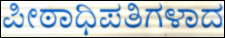
ಪೀಠಾಧಿಪತಿಗಳಾದ